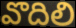
వొదిలి